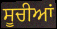
ਸੂਚੀਆਂ